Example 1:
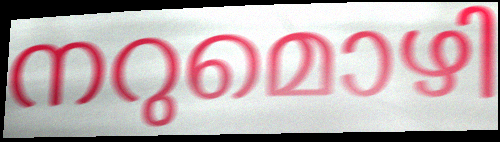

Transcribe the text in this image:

നറുമൊഴി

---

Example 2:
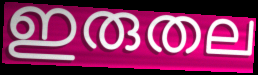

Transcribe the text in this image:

ഇരുതല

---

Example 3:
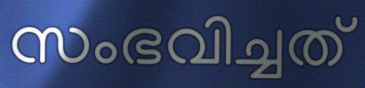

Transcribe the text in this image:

സംഭവിച്ചത്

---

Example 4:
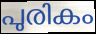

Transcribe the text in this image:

പുരികം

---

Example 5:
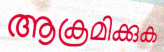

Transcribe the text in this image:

ആക്രമിക്കുക